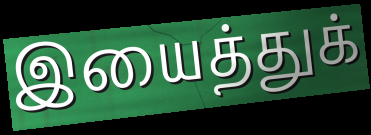
இயைத்துக்